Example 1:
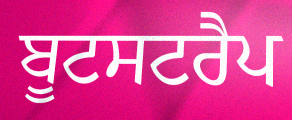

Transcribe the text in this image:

ਬੂਟਸਟਰੈਪ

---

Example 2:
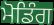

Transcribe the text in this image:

ਮੋਡਿੰਗ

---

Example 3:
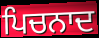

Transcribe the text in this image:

ਪਿਚਨਾਦ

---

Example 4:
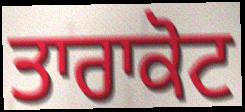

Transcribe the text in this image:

ਤਾਰਾਕੋਟ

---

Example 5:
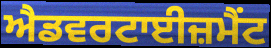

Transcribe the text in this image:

ਐਡਵਰਟਾਈਜ਼ਮੈਂਟ